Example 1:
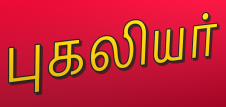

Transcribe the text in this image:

புகலியர்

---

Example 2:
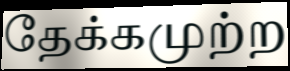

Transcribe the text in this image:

தேக்கமுற்ற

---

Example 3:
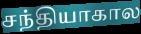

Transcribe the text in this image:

சந்தியாகால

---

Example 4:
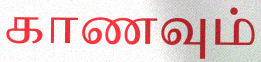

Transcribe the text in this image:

காணவும்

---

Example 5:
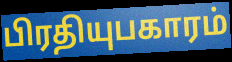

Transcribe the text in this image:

பிரதியுபகாரம்